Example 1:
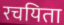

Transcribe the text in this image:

रचयिता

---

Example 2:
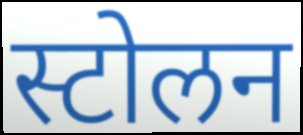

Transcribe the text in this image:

स्टोलन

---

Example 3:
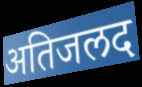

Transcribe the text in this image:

अतिजलद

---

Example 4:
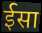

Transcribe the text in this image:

ईसा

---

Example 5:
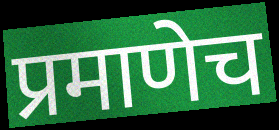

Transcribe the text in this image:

प्रमाणेच